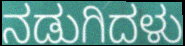
ನಡುಗಿದಳು